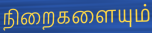
நிறைகளையும்